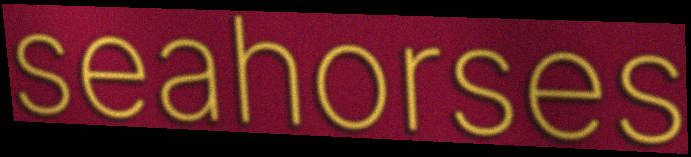
seahorses